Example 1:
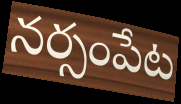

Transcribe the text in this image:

నర్సంపేట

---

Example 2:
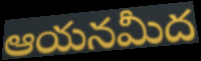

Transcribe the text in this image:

ఆయనమీద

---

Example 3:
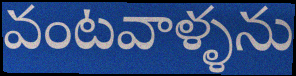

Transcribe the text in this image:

వంటవాళ్ళను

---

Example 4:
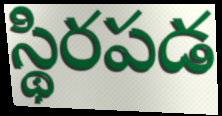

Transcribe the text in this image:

స్థిరపడ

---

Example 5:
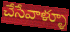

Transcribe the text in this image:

చేసేవాళ్ళూ